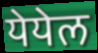
येयेल